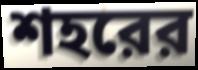
শহরের